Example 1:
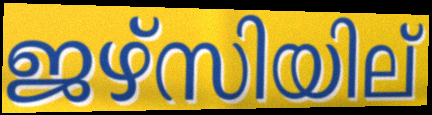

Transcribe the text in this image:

ജഴ്സിയില്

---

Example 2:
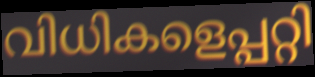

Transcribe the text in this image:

വിധികളെപ്പറ്റി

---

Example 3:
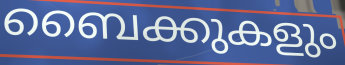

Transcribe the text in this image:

ബൈക്കുകളും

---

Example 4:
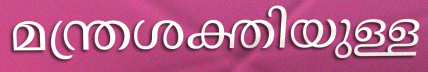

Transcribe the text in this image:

മന്ത്രശക്തിയുള്ള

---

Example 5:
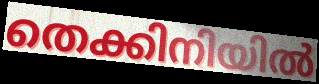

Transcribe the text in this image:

തെക്കിനിയിൽ